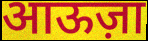
आऊज़ा